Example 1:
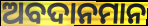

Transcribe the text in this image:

ଅବଦାନମାନ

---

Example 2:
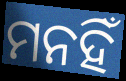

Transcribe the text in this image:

ମନହିଁ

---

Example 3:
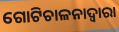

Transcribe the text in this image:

ଗୋଟିଚାଳନାଦ୍ୱାରା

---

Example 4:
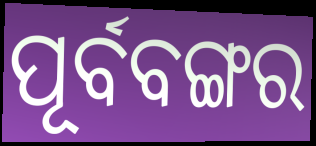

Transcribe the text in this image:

ପୂର୍ବବଙ୍ଗର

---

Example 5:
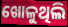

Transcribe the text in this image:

ଖୋଳୁଥିଲି